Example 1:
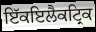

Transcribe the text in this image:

ਇੱਕਇਲੈਕਟ੍ਰਿਕ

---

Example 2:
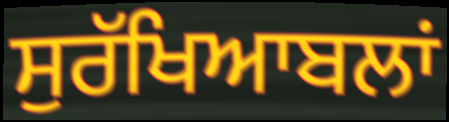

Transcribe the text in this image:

ਸੁਰੱਖਿਆਬਲਾਂ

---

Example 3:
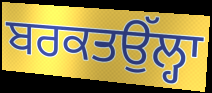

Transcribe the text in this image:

ਬਰਕਤਉੱਲ੍ਹਾ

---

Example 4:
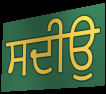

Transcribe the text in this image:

ਸਦੀਉ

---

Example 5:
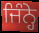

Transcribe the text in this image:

ਜਿੰਨ੍ਹੇ